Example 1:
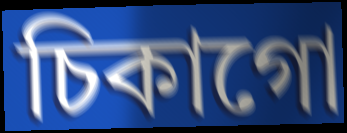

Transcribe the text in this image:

চিকাগো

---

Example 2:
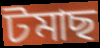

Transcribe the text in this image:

টমাছ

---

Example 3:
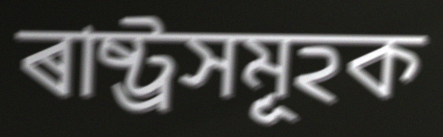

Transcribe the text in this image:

ৰাষ্ট্ৰসমূহক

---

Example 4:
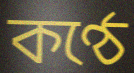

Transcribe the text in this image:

কণ্ঠে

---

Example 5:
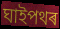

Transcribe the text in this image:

ঘাইপথৰ